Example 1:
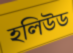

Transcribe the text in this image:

হলিউড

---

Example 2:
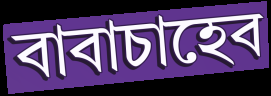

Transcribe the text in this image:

বাবাচাহেব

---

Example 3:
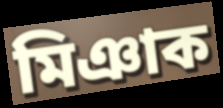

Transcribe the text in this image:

মিঞাক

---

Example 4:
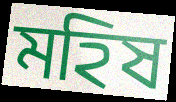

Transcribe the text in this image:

মহিষ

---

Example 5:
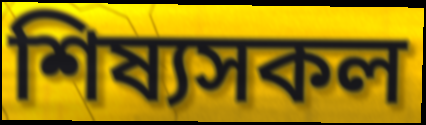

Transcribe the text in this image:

শিষ্যসকল